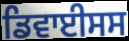
ਡਿਵਾਈਸਸ